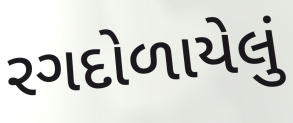
રગદોળાયેલું